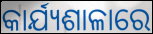
କାର୍ଯ୍ୟଶାଳାରେ